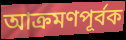
আক্রমণপূর্বক